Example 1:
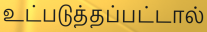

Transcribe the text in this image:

உட்படுத்தப்பட்டால்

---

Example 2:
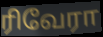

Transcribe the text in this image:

ரிவேரா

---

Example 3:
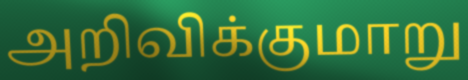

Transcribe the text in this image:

அறிவிக்குமாறு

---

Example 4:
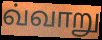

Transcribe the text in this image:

வ்வாறு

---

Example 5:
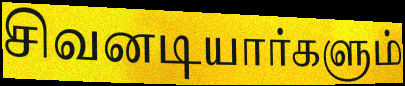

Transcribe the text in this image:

சிவனடியார்களும்